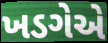
ખડગેએ